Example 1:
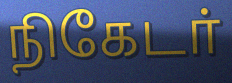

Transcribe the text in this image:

நிகேடர்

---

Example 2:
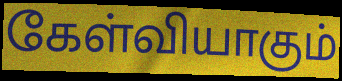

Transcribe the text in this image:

கேள்வியாகும்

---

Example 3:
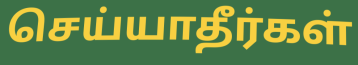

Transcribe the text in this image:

செய்யாதீர்கள்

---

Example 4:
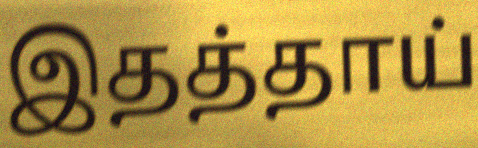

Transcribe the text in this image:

இதத்தாய்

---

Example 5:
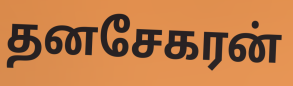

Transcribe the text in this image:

தனசேகரன்